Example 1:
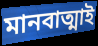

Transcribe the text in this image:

মানবাত্মাই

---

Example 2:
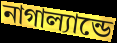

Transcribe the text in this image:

নাগাল্যান্ডে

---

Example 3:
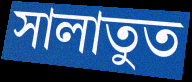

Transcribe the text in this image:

সালাতুত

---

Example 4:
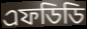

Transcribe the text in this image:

এফডিডি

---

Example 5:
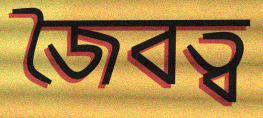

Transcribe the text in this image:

জৈবত্ব